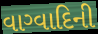
વાગ્વાદિની